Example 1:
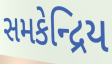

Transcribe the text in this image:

સમકેન્દ્રિય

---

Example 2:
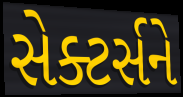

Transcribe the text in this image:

સેક્ટર્સને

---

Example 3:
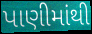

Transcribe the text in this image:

પાણીમાંથી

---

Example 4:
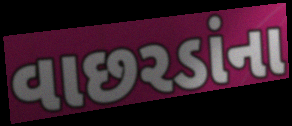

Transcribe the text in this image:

વાછરડાંના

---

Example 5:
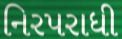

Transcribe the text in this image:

નિરપરાધી